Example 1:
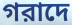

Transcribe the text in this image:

গরাদে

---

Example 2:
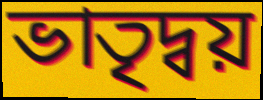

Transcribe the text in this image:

ভাতৃদ্বয়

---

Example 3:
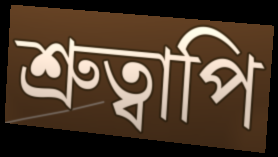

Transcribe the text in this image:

শ্রুত্বাপি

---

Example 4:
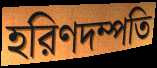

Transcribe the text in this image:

হরিণদম্পতি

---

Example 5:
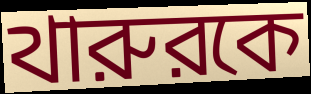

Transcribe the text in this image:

থারুরকে